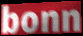
bonn